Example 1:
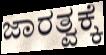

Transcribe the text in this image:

ಜಾರತ್ವಕ್ಕೆ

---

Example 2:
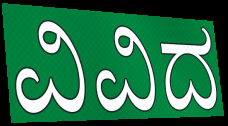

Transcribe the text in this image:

ವಿವಿದ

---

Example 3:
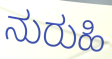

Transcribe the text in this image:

ನುರುಹಿ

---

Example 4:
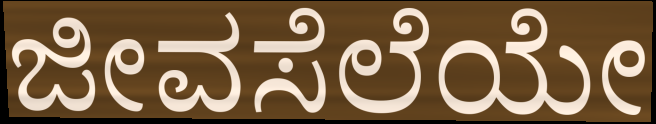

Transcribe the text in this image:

ಜೀವಸೆಲೆಯೇ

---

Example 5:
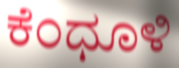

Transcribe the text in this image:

ಕೆಂಧೂಳಿ